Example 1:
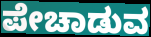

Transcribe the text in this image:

ಪೇಚಾಡುವ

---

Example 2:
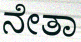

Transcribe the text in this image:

ನೇತಾ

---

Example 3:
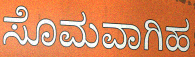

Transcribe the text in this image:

ಸೊಮವಾಗಿಹ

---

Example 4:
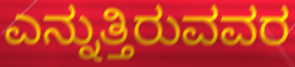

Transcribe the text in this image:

ಎನ್ನುತ್ತಿರುವವರ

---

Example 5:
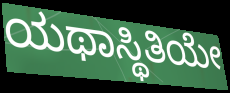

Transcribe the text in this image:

ಯಥಾಸ್ಥಿತಿಯೇ